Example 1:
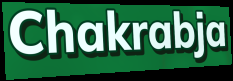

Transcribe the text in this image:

Chakrabja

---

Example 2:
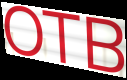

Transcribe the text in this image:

OTB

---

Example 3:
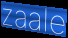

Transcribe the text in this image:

zaale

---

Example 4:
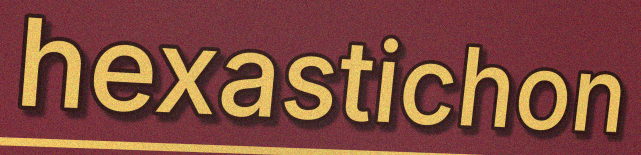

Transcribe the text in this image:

hexastichon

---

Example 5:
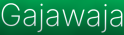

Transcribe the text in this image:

Gajawaja